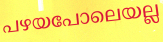
പഴയപോലെയല്ല